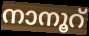
നാനൂറ്